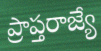
ప్రాప్తరాజ్యే